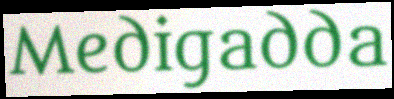
Medigadda